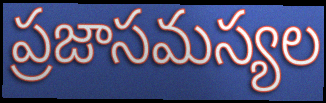
ప్రజాసమస్యల